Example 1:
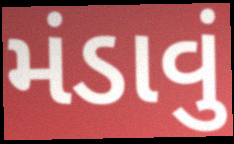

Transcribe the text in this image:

મંડાવું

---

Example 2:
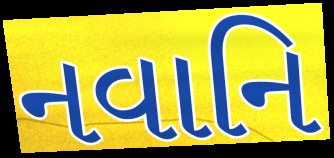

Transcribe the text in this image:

નવાનિ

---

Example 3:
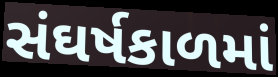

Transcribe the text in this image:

સંઘર્ષકાળમાં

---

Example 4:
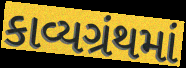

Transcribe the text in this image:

કાવ્યગ્રંથમાં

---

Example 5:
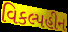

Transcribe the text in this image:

વિકલ્પહીન